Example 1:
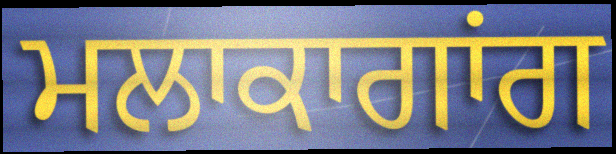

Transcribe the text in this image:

ਮਲਾਕਾਗਾਂਗ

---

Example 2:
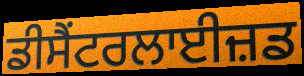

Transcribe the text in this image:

ਡੀਸੈਂਟਰਲਾਈਜ਼ਡ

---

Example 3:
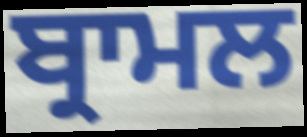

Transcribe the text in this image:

ਬ੍ਰਾਮਲ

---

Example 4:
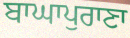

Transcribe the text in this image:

ਬਾਘਾਪੁਰਾਣਾ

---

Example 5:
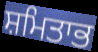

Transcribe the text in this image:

ਸ਼ਮਿਤਾਭ